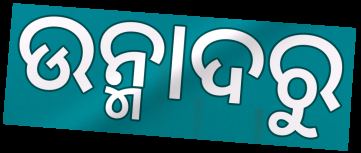
ଉନ୍ମାଦରୁ